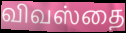
விவஸ்தை